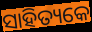
ସାହିତ୍ୟକେ